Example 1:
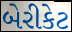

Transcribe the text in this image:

બેરીકેટ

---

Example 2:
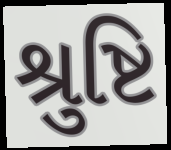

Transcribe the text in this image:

શ્રુષ્ટિ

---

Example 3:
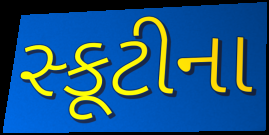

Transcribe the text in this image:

સ્કૂટીના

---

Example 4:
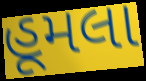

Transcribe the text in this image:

હૂમલા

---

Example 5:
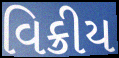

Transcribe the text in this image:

વિક્રીય